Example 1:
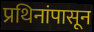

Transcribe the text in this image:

प्रथिनांपासून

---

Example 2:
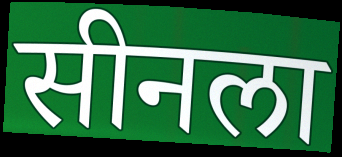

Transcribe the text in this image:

सीनला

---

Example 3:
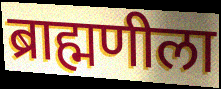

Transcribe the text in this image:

ब्राह्मणीला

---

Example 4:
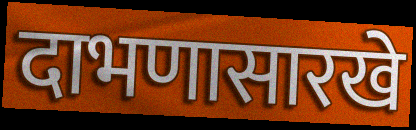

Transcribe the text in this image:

दाभणासारखे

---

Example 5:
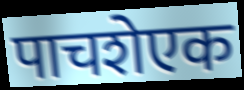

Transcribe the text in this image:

पाचशेएक